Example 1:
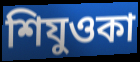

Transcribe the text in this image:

শিযুওকা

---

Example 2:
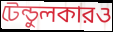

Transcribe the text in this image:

টেন্ডুলকারও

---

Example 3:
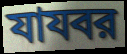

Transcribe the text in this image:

যাযবর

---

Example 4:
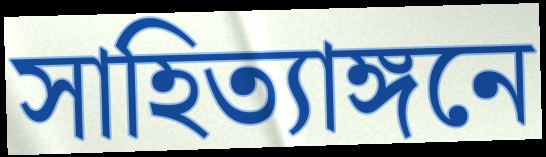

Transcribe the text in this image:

সাহিত্যাঙ্গনে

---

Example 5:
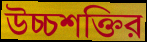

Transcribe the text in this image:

উচ্চশক্তির